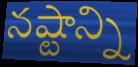
నష్టాన్ని